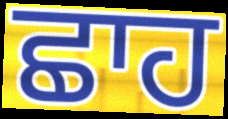
ਛਾਹ